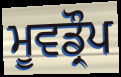
ਮੂਵਡ੍ਰੌਪ